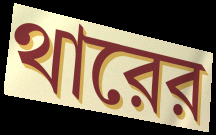
থারের